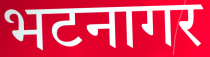
भटनागर